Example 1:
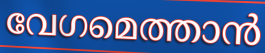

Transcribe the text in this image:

വേഗമെത്താൻ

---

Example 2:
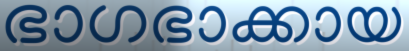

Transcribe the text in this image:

ഭാഗഭാക്കായ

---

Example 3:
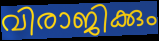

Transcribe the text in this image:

വിരാജിക്കും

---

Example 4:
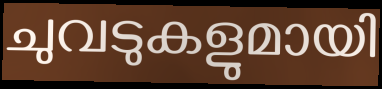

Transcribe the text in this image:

ചുവടുകളുമായി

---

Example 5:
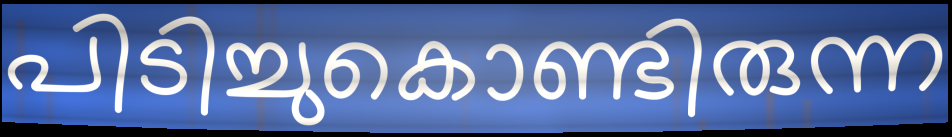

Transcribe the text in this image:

പിടിച്ചുകൊണ്ടിരുന്ന